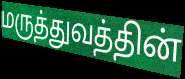
மருத்துவத்தின்